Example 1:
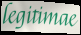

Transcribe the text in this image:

legitimae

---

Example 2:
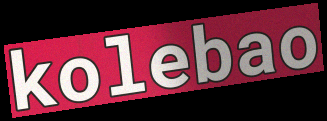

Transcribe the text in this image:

kolebao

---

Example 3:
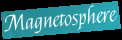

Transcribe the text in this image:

Magnetosphere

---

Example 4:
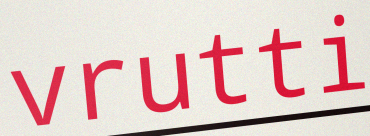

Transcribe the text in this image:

vrutti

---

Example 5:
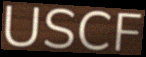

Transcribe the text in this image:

USCF